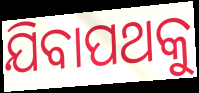
ଯିବାପଥକୁ